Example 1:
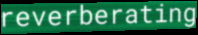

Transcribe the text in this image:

reverberating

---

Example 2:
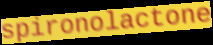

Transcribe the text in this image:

spironolactone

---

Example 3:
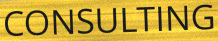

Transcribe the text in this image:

CONSULTING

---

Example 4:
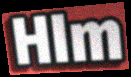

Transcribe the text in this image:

HIm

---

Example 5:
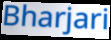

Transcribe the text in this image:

Bharjari